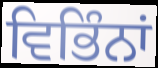
ਵਿਭਿੰਨਾਂ